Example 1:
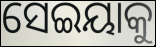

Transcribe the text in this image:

ସେଇୟାକୁ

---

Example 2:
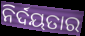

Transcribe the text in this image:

ନିର୍ଦୟତାର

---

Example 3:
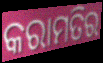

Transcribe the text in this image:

କରାମତିର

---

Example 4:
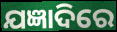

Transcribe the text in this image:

ଯଜ୍ଞାଦିରେ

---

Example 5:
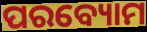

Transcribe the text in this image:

ପରବ୍ୟୋମ